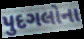
પુદગલોના